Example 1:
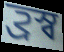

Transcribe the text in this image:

হ্ৰস্ব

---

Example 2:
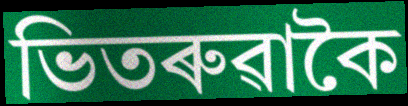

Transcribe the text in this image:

ভিতৰুৱাকৈ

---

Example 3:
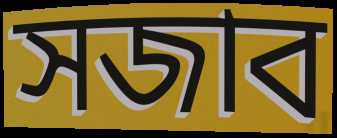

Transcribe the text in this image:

সজাব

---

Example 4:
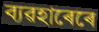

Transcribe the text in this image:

ব্যৱহাৰেৰে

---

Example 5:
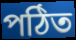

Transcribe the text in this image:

পঠিত